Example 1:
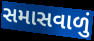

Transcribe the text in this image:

સમાસવાળું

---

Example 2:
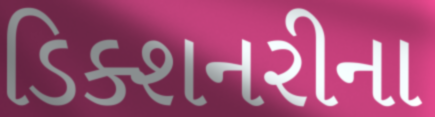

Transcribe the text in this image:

ડિક્શનરીના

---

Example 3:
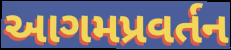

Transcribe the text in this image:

આગમપ્રવર્તન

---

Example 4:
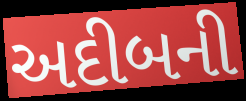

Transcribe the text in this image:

અદીબની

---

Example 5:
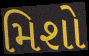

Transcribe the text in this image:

મિશો